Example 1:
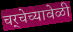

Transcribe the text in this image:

चर्चेच्यावेळी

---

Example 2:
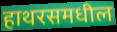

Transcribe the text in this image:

हाथरसमधील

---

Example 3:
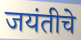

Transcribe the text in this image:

जयंतीचे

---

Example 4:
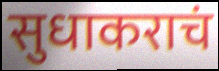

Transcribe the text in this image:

सुधाकराचं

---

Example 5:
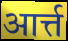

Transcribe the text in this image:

आर्त्त